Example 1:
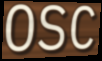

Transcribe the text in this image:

OSC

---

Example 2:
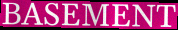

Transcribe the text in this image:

BASEMENT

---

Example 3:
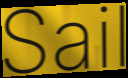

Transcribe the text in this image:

Sail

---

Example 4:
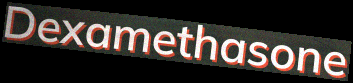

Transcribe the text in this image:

Dexamethasone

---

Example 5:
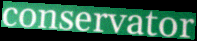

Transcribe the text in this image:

conservator